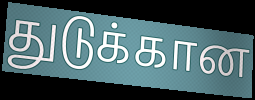
துடுக்கான